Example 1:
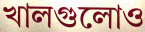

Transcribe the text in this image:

খালগুলোও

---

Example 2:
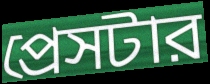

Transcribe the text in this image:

প্রেসটার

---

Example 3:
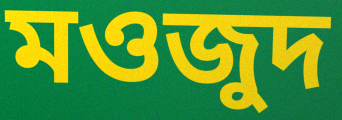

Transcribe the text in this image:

মওজুদ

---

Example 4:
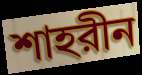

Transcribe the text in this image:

শাহরীন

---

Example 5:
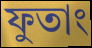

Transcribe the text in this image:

ফুতাং